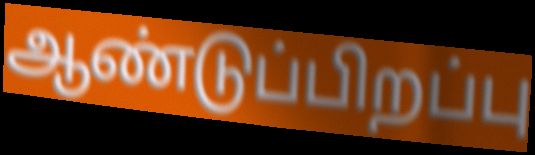
ஆண்டுப்பிறப்பு